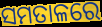
ସମତାଳରେ